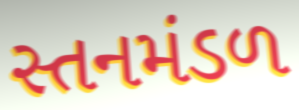
સ્તનમંડળ